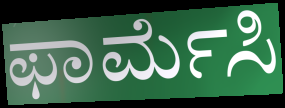
ಫಾರ್ಮೆಸಿ